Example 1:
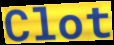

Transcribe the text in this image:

Clot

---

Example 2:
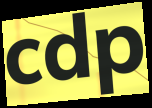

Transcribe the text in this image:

cdp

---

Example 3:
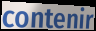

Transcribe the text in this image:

contenir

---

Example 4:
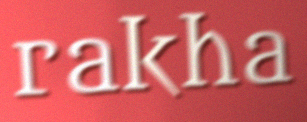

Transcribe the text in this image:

rakha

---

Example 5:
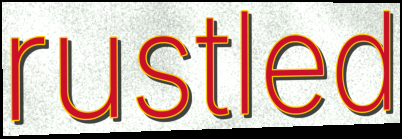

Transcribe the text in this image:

rustled